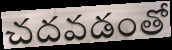
చదవడంతో